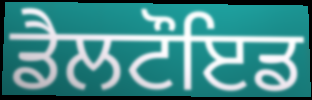
ਡੈਲਟੌਇਡ